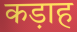
कड़ाह